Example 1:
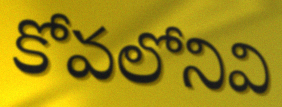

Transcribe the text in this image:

కోవలోనివి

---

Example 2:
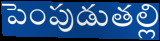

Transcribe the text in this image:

పెంపుడుతల్లి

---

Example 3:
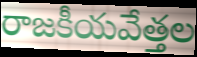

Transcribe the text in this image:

రాజకీయవేత్తల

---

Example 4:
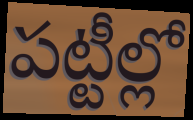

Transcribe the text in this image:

పట్టీల్లో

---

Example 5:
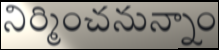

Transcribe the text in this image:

నిర్మించనున్నాం